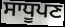
ਸਾਧੂਪਣ